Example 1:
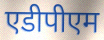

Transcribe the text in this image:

एडीपीएम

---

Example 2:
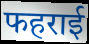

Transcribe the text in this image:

फहराई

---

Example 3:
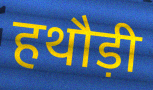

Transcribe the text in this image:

हथौड़ी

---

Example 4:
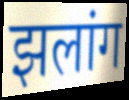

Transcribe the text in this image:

झलांग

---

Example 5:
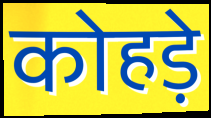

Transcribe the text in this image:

कोहड़े